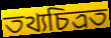
তথ্যচিত্ৰত